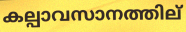
കല്പാവസാനത്തില്